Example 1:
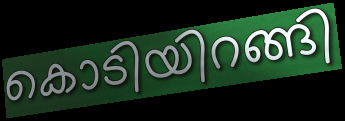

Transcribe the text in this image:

കൊടിയിറങ്ങി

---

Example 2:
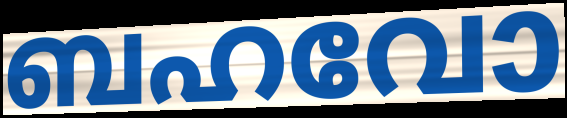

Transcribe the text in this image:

ബഹവോ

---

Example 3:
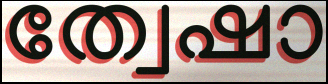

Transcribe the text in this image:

ത്വേഷാ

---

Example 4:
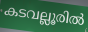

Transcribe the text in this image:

കടവല്ലൂരിൽ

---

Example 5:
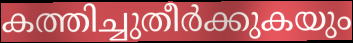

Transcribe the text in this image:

കത്തിച്ചുതീർക്കുകയും